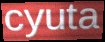
cyuta